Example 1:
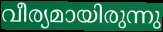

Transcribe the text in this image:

വീര്യമായിരുന്നു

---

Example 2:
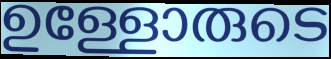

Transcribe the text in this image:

ഉള്ളോരുടെ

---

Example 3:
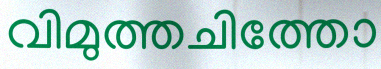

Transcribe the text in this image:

വിമുത്തചിത്തോ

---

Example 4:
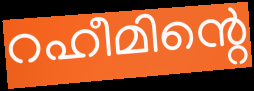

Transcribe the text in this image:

റഹീമിന്റെ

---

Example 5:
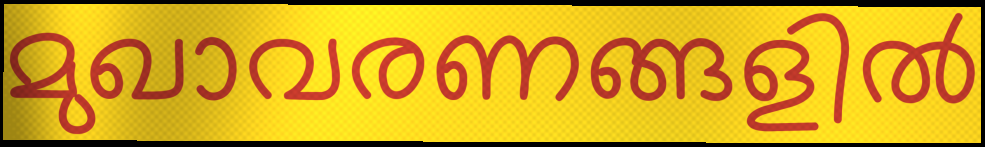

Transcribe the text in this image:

മുഖാവരണങ്ങളിൽ